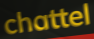
chattel